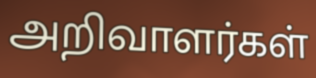
அறிவாளர்கள்